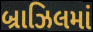
બ્રાઝિલમાં